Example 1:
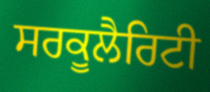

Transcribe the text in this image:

ਸਰਕੂਲੈਰਿਟੀ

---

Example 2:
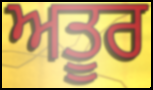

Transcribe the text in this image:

ਅਤੂਰ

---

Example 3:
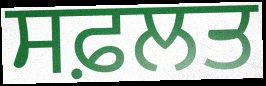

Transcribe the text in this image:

ਸਫ਼ਲਤ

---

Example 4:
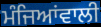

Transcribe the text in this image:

ਮੰਜਿਆਂਵਾਲੀ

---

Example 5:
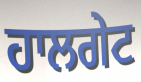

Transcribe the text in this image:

ਹਾਲਗੇਟ